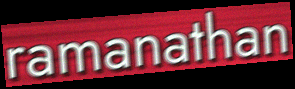
ramanathan